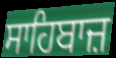
ਸਾਹਿਬਾਜ਼